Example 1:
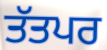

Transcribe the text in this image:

ਤੱਤਪਰ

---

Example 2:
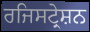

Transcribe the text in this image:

ਰਜਿਸਟ੍ਰੇਸ਼ਨ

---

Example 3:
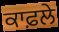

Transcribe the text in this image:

ਕਾਫ਼ਲੇ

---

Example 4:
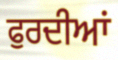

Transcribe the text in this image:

ਫੁਰਦੀਆਂ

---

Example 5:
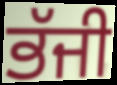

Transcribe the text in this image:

ਭੱਜੀ